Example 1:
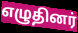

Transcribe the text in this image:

எழுதினர்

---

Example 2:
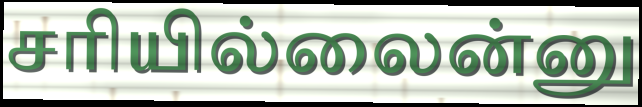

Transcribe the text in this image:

சரியில்லைன்னு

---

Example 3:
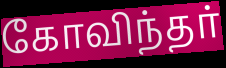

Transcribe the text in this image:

கோவிந்தர்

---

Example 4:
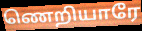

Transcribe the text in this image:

ணெறியாரே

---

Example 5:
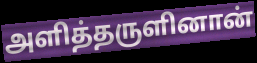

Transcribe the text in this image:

அளித்தருளினான்